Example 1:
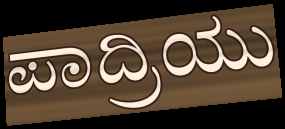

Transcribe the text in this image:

ಪಾದ್ರಿಯು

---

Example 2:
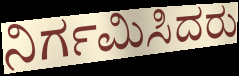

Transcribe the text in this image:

ನಿರ್ಗಮಿಸಿದರು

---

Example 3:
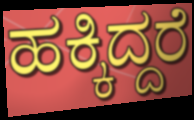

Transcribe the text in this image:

ಹಕ್ಕಿದ್ದರೆ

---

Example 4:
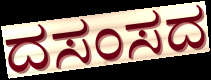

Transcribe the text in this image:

ದಸಂಸದ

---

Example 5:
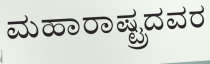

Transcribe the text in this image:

ಮಹಾರಾಷ್ಟ್ರದವರ